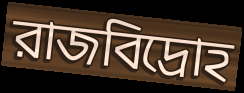
রাজবিদ্রোহ